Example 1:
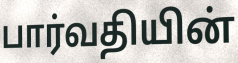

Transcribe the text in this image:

பார்வதியின்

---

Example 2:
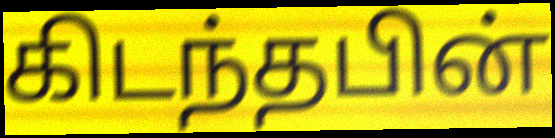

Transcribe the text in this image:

கிடந்தபின்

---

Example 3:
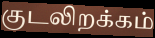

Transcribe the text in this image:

குடலிறக்கம்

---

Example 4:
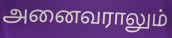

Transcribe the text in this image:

அனைவராலும்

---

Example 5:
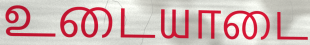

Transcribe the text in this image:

உடையாடை